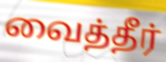
வைத்தீர்